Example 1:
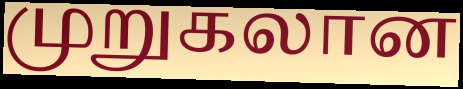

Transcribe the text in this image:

முறுகலான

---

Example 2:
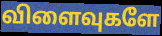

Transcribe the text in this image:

விளைவுகளே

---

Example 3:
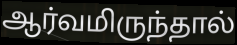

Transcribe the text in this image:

ஆர்வமிருந்தால்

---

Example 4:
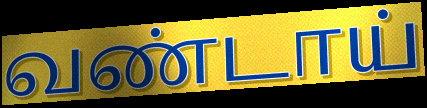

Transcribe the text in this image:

வண்டாய்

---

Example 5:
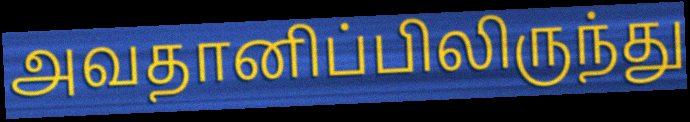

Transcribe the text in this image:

அவதானிப்பிலிருந்து